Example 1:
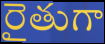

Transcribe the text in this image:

రైతుగా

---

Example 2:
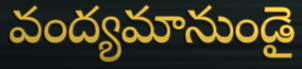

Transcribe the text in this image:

వంద్యమానుండై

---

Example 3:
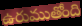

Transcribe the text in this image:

ఉరుముతోంది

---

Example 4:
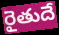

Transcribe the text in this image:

రైతుదే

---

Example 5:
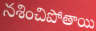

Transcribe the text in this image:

నశించిపోతాయి